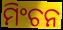
ମିଂଚନ